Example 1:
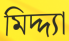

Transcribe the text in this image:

মিদ্দ্যা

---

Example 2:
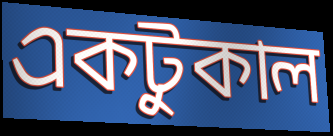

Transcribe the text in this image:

একটুকাল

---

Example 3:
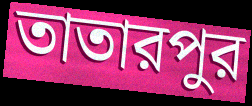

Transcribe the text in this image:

তাতারপুর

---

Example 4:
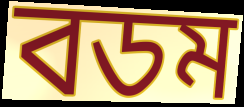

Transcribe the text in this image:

বডম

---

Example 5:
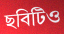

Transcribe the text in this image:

ছবিটিও